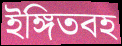
ইঙ্গিতবহ